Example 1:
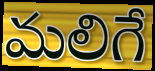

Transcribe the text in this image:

మలిగే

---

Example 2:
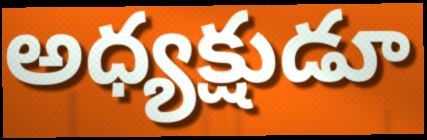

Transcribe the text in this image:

అధ్యక్షుడూ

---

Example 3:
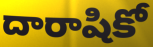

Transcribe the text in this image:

దారాషికో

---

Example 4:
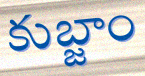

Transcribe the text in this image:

కుబ్జాం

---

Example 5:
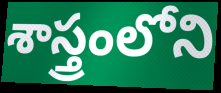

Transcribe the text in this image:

శాస్త్రంలోని